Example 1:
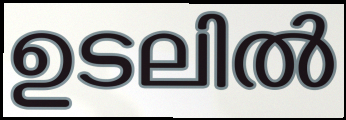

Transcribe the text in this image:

ഉടലിൽ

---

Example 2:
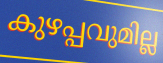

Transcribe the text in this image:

കുഴപ്പവുമില്ല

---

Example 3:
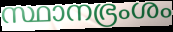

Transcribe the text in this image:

സ്ഥാനഭ്രംശം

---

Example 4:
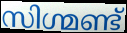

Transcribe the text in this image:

സിഗ്മണ്ട്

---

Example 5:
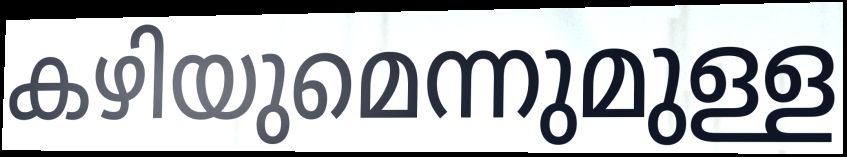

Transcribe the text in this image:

കഴിയുമെന്നുമുള്ള